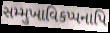
સમ્મુખાવિકપ્પનાપિ